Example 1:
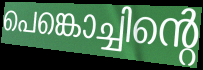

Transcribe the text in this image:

പെങ്കൊച്ചിന്റെ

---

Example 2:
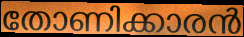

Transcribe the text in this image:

തോണിക്കാരൻ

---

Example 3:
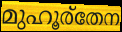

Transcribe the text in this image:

മുഹൂര്തേന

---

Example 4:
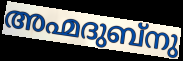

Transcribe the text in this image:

അഹ്മദുബ്നു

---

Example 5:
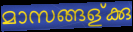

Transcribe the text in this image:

മാസങ്ങള്ക്കു